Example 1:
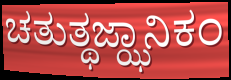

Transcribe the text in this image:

ಚತುತ್ಥಜ್ಝಾನಿಕಂ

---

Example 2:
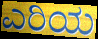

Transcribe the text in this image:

ಎರಿಯ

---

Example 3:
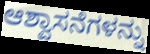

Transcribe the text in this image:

ಆಶ್ವಾಸನೆಗಳನ್ನು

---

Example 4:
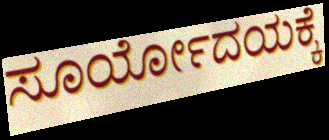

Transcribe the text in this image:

ಸೂರ್ಯೋದಯಕ್ಕೆ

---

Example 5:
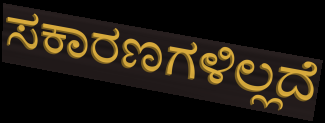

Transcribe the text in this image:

ಸಕಾರಣಗಳಿಲ್ಲದೆ